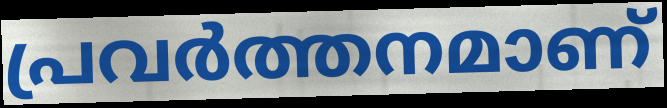
പ്രവർത്തനമാണ്